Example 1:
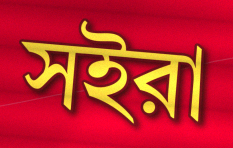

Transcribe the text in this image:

সইরা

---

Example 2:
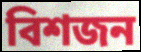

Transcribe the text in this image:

বিশজন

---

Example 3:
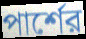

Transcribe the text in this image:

পার্শের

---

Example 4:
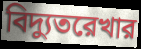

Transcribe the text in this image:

বিদ্যুতরেখার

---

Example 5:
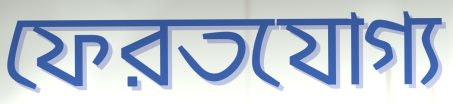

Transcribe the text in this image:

ফেরতযোগ্য